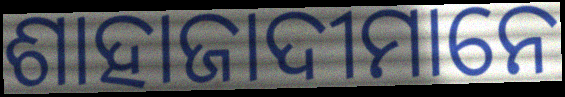
ଶାହାଜାଦୀମାନେ